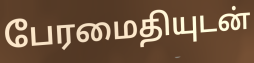
பேரமைதியுடன்